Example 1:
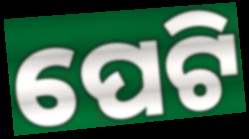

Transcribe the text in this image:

ପେଟି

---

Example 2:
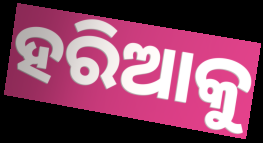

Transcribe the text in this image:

ହରିଆକୁ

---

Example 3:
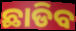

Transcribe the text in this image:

ଛାଡିବ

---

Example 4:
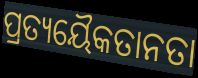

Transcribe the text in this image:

ପ୍ରତ୍ୟୟୈକତାନତା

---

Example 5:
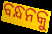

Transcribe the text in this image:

ବନ୍ଧନକୁ